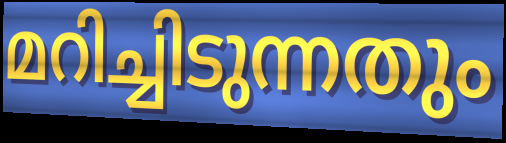
മറിച്ചിടുന്നതും